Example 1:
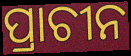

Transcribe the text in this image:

ପ୍ରାଚୀନ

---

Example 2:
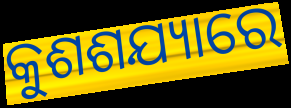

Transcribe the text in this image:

କୁଶଶଯ୍ୟାରେ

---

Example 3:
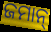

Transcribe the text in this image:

ଜମାନ୍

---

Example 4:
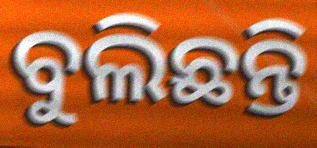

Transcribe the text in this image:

ବୁଲିଛନ୍ତି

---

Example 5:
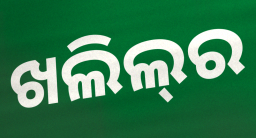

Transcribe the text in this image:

ଖଲିଲ୍‍ର